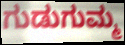
ಗುಡುಗುಮ್ಮ